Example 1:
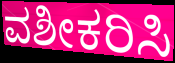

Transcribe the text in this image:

ವಶೀಕರಿಸಿ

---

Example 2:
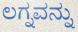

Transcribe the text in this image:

ಲಗ್ನವನ್ನು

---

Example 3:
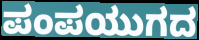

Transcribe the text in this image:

ಪಂಪಯುಗದ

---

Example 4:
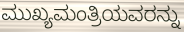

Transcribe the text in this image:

ಮುಖ್ಯಮಂತ್ರಿಯವರನ್ನು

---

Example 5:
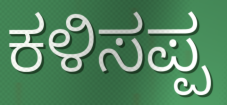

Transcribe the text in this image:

ಕಳಿಸಪ್ಪ